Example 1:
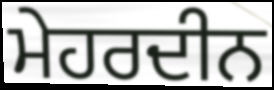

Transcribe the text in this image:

ਮੇਹਰਦੀਨ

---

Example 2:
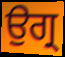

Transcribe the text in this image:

ਉਗ੍ਰ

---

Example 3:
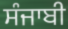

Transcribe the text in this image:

ਸੰਜਾਬੀ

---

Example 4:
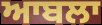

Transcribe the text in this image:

ਆਬਲਾ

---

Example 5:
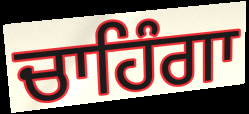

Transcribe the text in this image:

ਚਾਹਿੰਗਾ